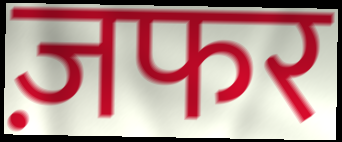
ज़फर